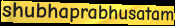
shubhaprabhusatam